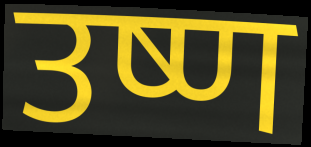
उष्ण